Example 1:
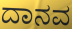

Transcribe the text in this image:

ದಾನವ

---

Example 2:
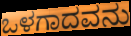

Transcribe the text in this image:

ಒಳಗಾದವನು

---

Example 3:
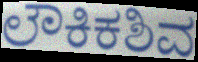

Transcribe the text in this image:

ಲೌಕಿಕಶಿವ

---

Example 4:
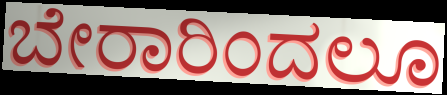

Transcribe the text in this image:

ಬೇರಾರಿಂದಲೂ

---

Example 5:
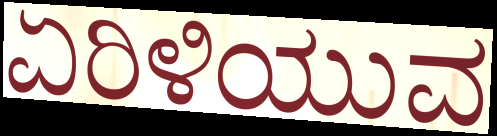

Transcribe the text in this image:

ಏರಿಳಿಯುವ